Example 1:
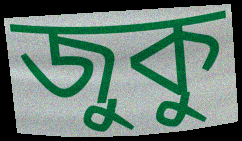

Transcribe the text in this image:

জুকু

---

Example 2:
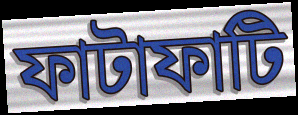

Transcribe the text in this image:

ফাটাফাটি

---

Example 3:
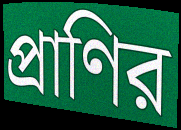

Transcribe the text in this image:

প্রাণির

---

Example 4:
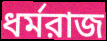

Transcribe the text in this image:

ধর্মরাজ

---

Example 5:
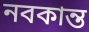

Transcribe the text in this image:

নবকান্ত